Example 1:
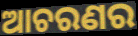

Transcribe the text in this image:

ଆଚରଣର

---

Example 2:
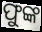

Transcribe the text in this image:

ଫୁଙ୍କ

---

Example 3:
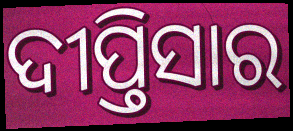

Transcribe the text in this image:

ଦୀପ୍ତିସାର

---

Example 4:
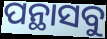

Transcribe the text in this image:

ପନ୍ଥାସବୁ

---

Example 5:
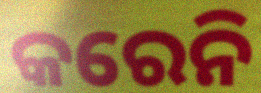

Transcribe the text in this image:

କରେନି